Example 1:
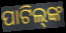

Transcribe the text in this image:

ପାଟିଲ୍‌ଙ୍କ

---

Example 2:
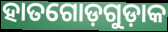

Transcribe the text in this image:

ହାତଗୋଡ଼ଗୁଡ଼ାକ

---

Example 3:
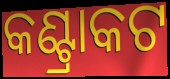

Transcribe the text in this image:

କଣ୍ଟ୍ରାକଟ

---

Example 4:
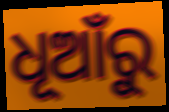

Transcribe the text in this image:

ଧୂଆଁରୁ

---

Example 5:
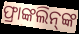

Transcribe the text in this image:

ଫ୍ରାଙ୍କଲିନ୍‌ଙ୍କ